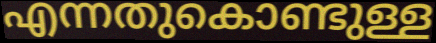
എന്നതുകൊണ്ടുള്ള